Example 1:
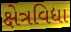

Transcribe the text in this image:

ક્ષેત્રવિદ્યા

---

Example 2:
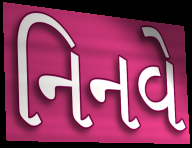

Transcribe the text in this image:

નિનવે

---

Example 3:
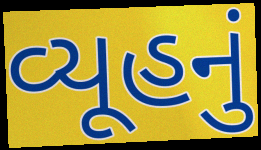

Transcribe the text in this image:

વ્યૂહનું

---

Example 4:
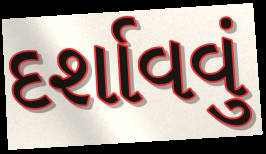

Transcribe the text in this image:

દર્શાવવું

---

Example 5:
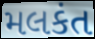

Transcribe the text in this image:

મલકંત